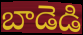
బాడెడి